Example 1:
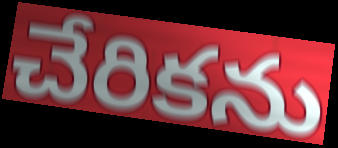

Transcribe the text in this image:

చేరికను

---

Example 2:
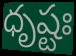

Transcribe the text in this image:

ధృష్టః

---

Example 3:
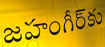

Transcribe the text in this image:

జహంగీర్‌కు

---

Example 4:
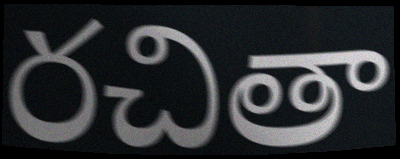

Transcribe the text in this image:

రచితా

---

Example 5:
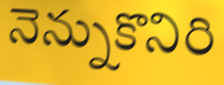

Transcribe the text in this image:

నెన్నుకొనిరి